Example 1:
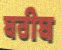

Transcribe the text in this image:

ਬਰੀਬ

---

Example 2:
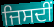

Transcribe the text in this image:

ਜਿਸਦੀਂ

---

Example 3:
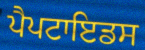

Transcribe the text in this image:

ਪੈਪਟਾਇਡਸ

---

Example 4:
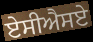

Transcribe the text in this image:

ਏਸੀਐਸਏ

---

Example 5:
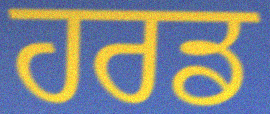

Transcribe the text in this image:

ਹਰਡ